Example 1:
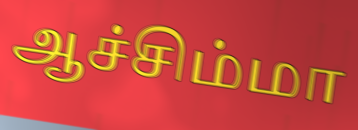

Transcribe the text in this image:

ஆச்சிம்மா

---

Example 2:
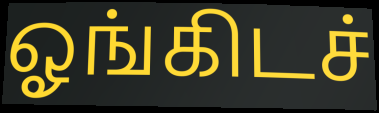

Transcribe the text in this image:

ஓங்கிடச்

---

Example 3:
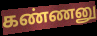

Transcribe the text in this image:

கண்ணனு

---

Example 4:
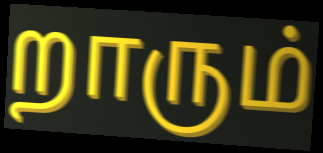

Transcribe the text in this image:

றாரும்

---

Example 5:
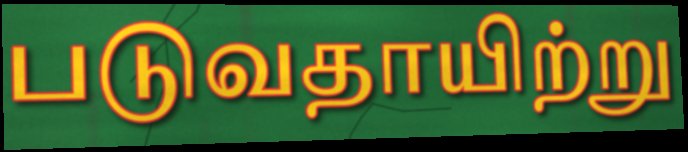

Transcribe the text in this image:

படுவதாயிற்று